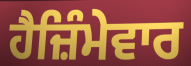
ਹੈਜ਼ਿੰਮੇਵਾਰ